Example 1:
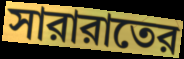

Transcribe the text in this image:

সারারাতের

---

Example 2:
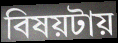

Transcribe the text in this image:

বিষয়টায়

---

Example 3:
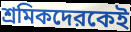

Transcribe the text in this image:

শ্রমিকদেরকেই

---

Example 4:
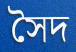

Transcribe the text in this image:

সৈদ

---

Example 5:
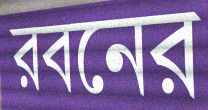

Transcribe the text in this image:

রবনের